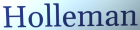
Holleman